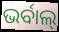
ଭର୍ବାଲ୍